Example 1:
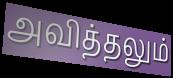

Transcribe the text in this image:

அவித்தலும்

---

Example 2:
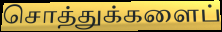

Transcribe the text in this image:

சொத்துக்களைப்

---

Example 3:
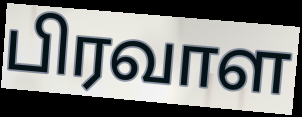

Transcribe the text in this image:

பிரவாள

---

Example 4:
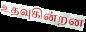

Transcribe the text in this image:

உதவுகின்றன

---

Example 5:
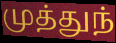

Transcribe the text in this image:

முத்துந்